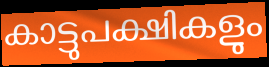
കാട്ടുപക്ഷികളും